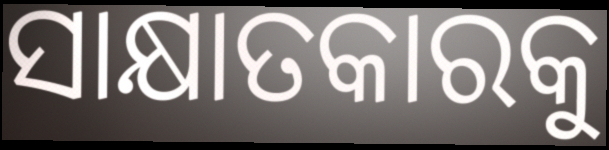
ସାକ୍ଷାତକାରକୁ